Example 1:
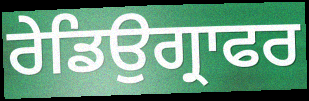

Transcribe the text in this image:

ਰੇਡਿਉਗ੍ਰਾਫਰ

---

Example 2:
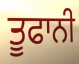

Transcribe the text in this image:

ਤੂਫਾਨੀ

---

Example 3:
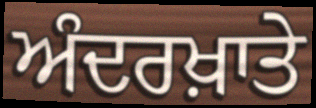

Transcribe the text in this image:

ਅੰਦਰਖ਼ਾਤੇ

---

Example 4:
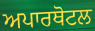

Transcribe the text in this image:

ਅਪਾਰਥੋਟਲ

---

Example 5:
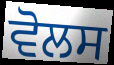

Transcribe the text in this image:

ਵੋਲਸ